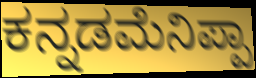
ಕನ್ನಡಮೆನಿಪ್ಪಾ